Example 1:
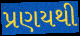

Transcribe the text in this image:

પ્રણયથી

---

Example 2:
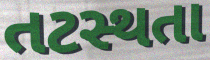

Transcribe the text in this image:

તટસ્થતા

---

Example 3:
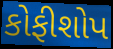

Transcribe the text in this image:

કોફીશોપ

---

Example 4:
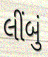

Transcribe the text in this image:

લીંબું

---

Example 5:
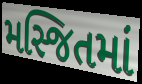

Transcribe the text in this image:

મસ્જિતમાં